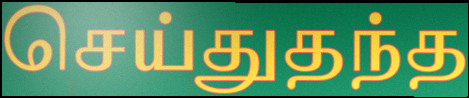
செய்துதந்த